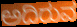
ಅದಿರುವ